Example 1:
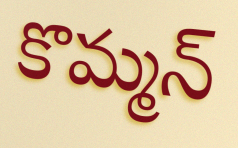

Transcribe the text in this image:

కొమ్మన్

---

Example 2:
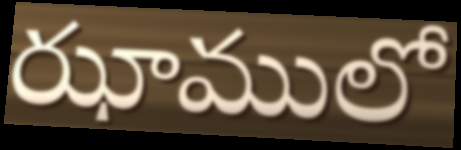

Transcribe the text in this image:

ఝాములో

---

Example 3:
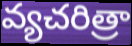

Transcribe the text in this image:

వ్యచరిత్రా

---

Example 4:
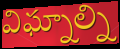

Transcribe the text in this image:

విఘ్నాల్ని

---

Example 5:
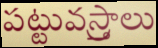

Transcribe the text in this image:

పట్టువస్ర్తాలు